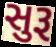
સુરૂ